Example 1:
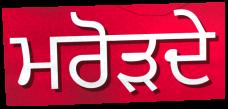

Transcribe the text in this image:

ਮਰੋੜਦੇ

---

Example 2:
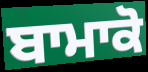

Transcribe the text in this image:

ਬਾਮਾਕੋ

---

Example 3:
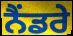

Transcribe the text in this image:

ਨੈਂਡਰੇ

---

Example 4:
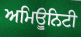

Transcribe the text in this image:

ਅਮਿਊਨਿਟੀ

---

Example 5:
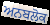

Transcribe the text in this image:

ਅਨਬਲੋਕ